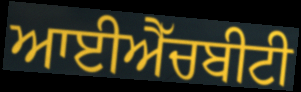
ਆਈਐੱਚਬੀਟੀ